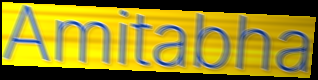
Amitabha